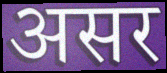
असर